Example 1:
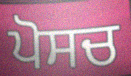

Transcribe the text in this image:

ਪੋਸਚ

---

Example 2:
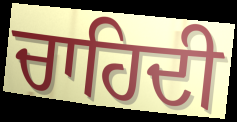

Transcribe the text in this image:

ਚਾਹਿਦੀ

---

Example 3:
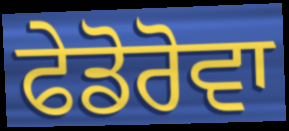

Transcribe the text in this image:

ਫੇਡੋਰੋਵਾ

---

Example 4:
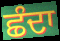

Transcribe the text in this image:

ਛੰਦਾ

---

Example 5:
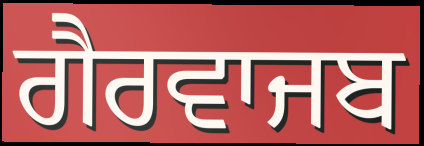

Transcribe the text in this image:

ਗੈਰਵਾਜਬ